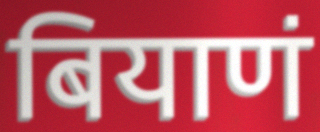
बियाणं